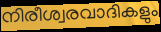
നിരീശ്വരവാദികളും